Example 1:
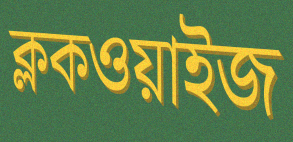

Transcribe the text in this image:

ক্লকওয়াইজ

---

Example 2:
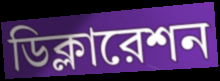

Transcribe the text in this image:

ডিক্লারেশন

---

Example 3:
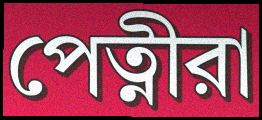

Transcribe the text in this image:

পেত্নীরা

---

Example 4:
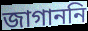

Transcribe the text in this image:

জাগাননি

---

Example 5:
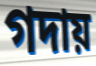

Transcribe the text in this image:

গদায়